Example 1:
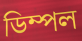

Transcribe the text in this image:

ডিম্পল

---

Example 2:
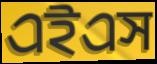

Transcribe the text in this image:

এইএস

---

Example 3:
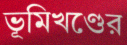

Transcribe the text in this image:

ভূমিখণ্ডের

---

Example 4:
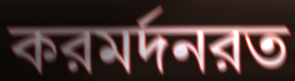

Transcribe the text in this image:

করমর্দনরত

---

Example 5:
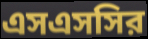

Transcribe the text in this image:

এসএসসির